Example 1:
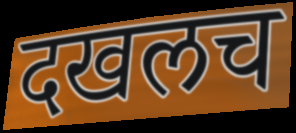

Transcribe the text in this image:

दखलच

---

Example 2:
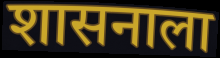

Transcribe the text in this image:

शासनाला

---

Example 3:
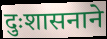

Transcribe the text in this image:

दुःशासनाने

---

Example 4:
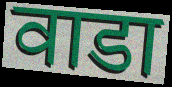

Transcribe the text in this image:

वाडा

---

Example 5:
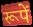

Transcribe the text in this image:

रूपें